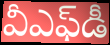
వీఎఫ్‌డీ